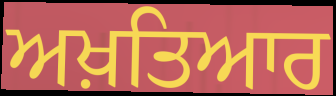
ਅਖ਼ਤਿਆਰ